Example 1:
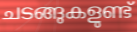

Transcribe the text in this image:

ചടങ്ങുകളുണ്ട്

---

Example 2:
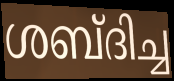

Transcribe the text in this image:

ശബ്ദിച്ച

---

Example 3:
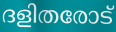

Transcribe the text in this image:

ദളിതരോട്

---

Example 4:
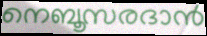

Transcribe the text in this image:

നെബൂസരദാൻ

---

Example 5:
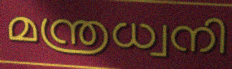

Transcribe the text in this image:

മന്ത്രധ്വനി